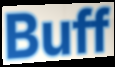
Buff